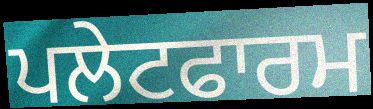
ਪਲੇਟਫਾਰਮ